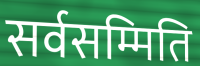
सर्वसम्मिति